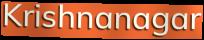
Krishnanagar